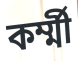
কর্ম্মী